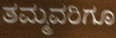
ತಮ್ಮವರಿಗೂ